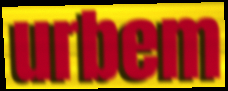
urbem